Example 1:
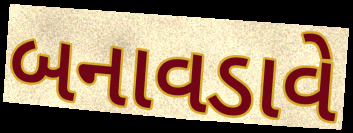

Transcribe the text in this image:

બનાવડાવે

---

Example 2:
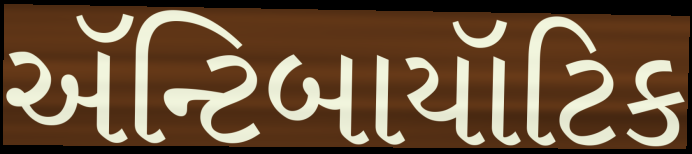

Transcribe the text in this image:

ઍન્ટિબાયૉટિક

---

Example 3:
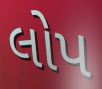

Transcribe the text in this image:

લોપ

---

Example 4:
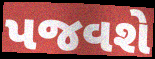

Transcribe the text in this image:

પજવશે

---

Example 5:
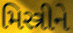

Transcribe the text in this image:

મિસ્ત્રીને